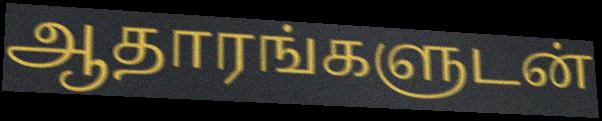
ஆதாரங்களுடன்